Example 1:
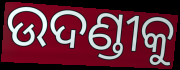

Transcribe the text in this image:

ଉଦଣ୍ଡୀକୁ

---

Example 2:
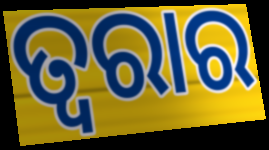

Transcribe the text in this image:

ତ୍ୱରାର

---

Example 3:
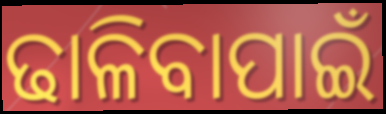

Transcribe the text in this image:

ଢାଳିବାପାଇଁ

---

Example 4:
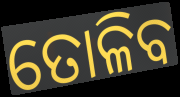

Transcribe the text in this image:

ତୋଳିବ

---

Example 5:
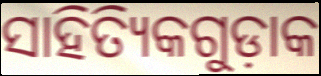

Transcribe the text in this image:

ସାହିତ୍ୟିକଗୁଡ଼ାକ